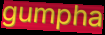
gumpha